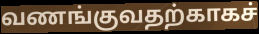
வணங்குவதற்காகச்